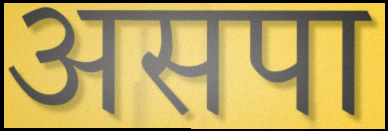
असपा